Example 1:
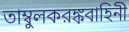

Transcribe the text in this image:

তাম্বুলকরঙ্কবাহিনী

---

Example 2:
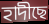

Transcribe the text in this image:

হাদীছে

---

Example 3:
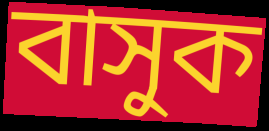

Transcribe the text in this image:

বাসুক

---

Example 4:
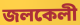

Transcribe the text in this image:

জলকেলী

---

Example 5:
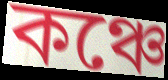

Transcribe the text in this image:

কঞ্চে